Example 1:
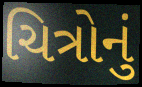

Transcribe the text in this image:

ચિત્રોનું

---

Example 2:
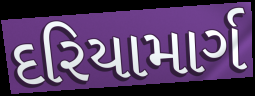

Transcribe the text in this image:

દરિયામાર્ગ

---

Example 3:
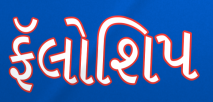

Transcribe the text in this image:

ફૅલોશિપ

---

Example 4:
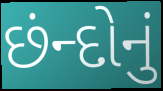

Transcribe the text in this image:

છંન્દોનું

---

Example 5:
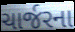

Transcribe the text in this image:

ચાર્જરના